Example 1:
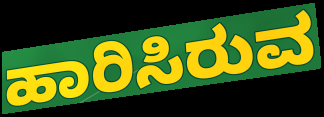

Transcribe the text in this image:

ಹಾರಿಸಿರುವ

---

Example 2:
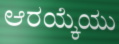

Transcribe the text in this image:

ಆರಯ್ಕೆಯು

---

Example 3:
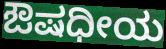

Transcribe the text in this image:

ಔಷಧೀಯ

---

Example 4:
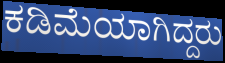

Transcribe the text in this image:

ಕಡಿಮೆಯಾಗಿದ್ದರು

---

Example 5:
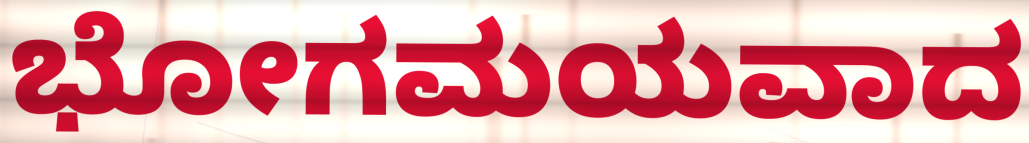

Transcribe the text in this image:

ಭೋಗಮಯವಾದ